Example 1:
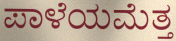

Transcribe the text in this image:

ಪಾಳೆಯಮೆತ್ತ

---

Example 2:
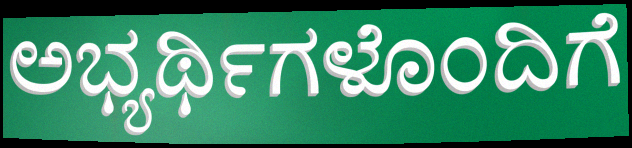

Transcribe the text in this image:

ಅಭ್ಯರ್ಥಿಗಳೊಂದಿಗೆ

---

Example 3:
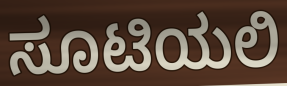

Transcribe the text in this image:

ಸೂಟಿಯಲಿ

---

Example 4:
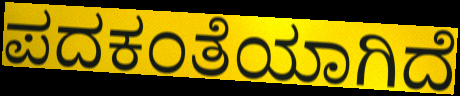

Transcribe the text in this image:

ಪದಕಂತೆಯಾಗಿದೆ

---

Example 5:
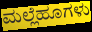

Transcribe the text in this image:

ಮಲ್ಲೆಹೂಗಳು